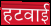
हटवाई